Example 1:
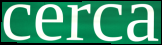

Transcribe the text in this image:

cerca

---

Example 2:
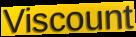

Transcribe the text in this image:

Viscount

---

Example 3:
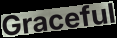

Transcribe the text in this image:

Graceful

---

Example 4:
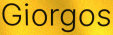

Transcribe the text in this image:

Giorgos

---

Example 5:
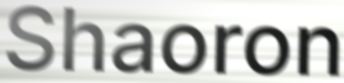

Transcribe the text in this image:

Shaoron